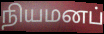
நியமனப்